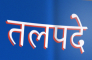
तलपदे